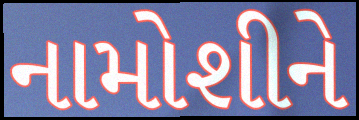
નામોશીને